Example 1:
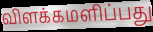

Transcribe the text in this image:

விளக்கமளிப்பது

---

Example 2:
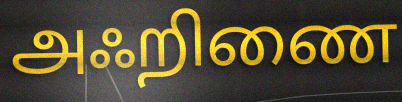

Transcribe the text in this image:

அஃறிணை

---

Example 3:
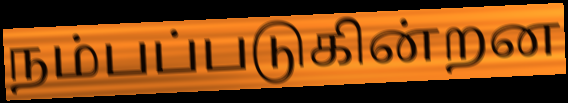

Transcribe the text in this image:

நம்பப்படுகின்றன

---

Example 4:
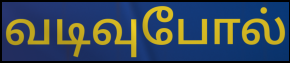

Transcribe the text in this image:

வடிவுபோல்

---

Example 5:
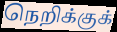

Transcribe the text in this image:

நெறிக்குக்